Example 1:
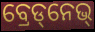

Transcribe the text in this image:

ବ୍ରେଡ୍‌ନେଭ୍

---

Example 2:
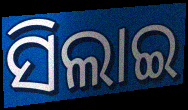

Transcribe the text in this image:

ସିଲାଇ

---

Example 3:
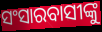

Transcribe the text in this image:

ସଂସାରବାସୀଙ୍କୁ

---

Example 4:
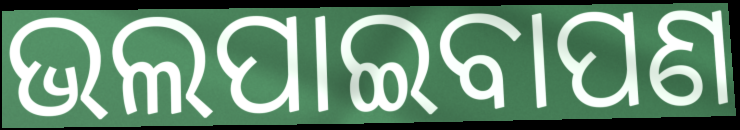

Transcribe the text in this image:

ଭଲପାଇବାପଣ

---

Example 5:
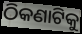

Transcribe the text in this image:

ଠିକଣାଟିକୁ